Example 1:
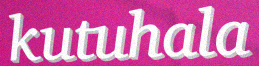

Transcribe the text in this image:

kutuhala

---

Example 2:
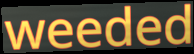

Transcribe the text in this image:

weeded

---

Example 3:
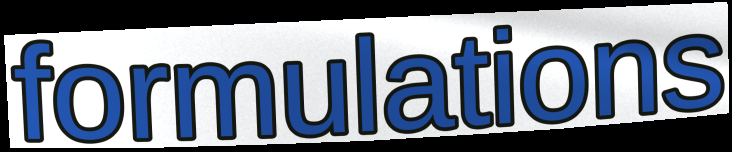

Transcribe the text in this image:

formulations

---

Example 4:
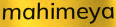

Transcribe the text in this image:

mahimeya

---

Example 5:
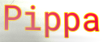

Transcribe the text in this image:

Pippa